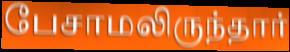
பேசாமலிருந்தார்